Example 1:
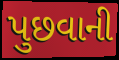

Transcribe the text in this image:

પુછવાની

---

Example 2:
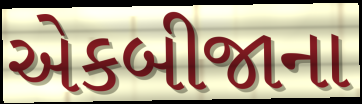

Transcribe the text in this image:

એકબીજાના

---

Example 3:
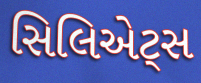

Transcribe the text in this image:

સિલિએટ્સ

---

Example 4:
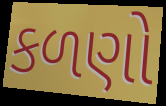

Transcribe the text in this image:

કળણો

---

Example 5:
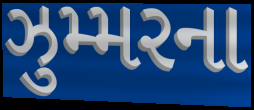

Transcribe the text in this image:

ઝુમ્મરના